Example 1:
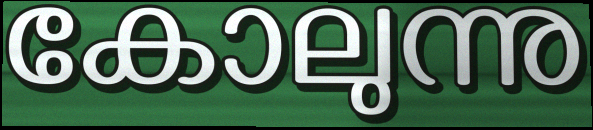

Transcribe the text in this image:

കോലുന്നു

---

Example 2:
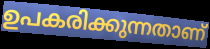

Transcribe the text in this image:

ഉപകരിക്കുന്നതാണ്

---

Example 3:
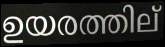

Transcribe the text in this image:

ഉയരത്തില്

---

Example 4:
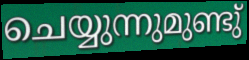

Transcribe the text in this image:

ചെയ്യുന്നുമുണ്ടു്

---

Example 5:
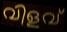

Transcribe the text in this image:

വിളവ്